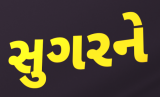
સુગરને